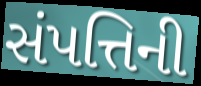
સંપત્તિની